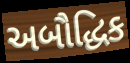
અબૌદ્ધિક